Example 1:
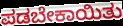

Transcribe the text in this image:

ಪಡಬೇಕಾಯಿತು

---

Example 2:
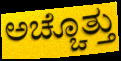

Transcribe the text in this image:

ಅಚ್ಚೊತ್ತು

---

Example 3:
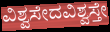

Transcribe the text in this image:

ವಿಶ್ವಸೇದವಿಶ್ವಸ್ತೇ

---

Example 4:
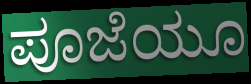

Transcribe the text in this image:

ಪೂಜೆಯೂ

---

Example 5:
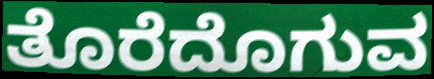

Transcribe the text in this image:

ತೊರೆದೊಗುವ